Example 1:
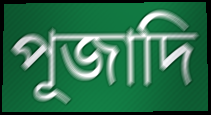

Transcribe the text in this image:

পূজাদি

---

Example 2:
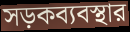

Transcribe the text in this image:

সড়কব্যবস্থার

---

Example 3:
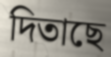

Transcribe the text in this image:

দিতাছে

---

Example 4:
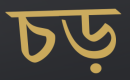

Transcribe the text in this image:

চড়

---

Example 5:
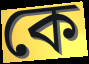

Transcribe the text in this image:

কে